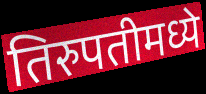
तिरुपतीमध्ये